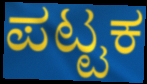
ಪಟ್ಟಕ